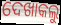
ଦେଖାକଲୁ